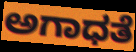
ಅಗಾಧತೆ